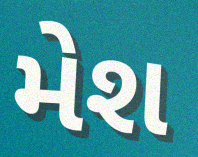
મેશ